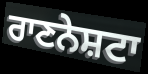
ਰਾਣਨੇਸ਼ਟਾ